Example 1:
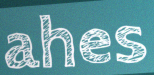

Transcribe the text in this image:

ahes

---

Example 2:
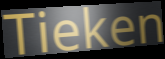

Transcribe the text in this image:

Tieken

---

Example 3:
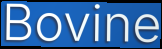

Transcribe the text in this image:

Bovine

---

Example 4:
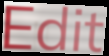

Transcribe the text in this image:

Edit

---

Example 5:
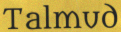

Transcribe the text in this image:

Talmud